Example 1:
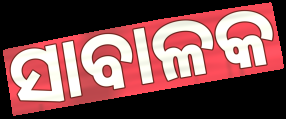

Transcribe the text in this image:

ସାବାଳକ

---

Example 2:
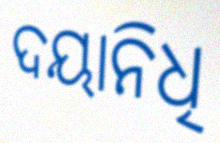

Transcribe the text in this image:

ଦୟାନିଧି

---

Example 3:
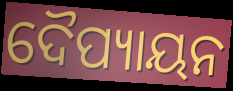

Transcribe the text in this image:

ଦୈପ୍ୟାୟନ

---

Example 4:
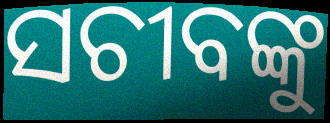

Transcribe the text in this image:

ସଚୀବଙ୍କୁ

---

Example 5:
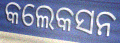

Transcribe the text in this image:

କଲେକସନ